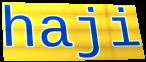
haji